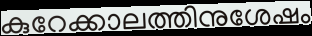
കുറേക്കാലത്തിനുശേഷം